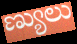
ణ్యులు